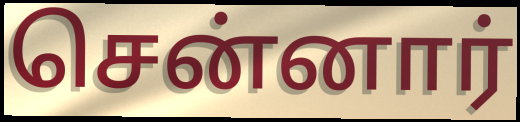
சென்னார்